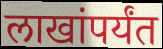
लाखांपर्यंत